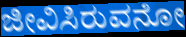
ಜೀವಿಸಿರುವನೋ